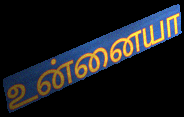
உன்னையா